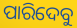
ପାରିଦେବୁ